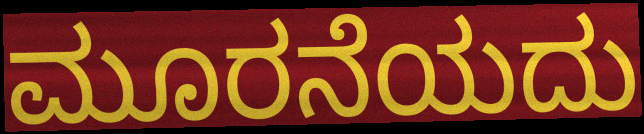
ಮೂರನೆಯದು